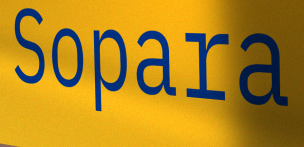
Sopara